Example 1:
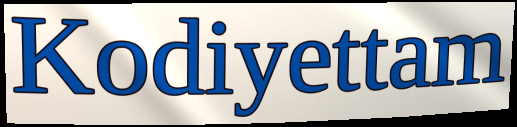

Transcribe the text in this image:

Kodiyettam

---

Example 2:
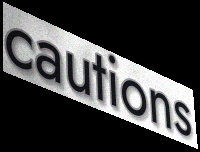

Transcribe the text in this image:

cautions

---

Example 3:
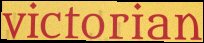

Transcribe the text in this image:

victorian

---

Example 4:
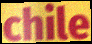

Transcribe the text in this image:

chile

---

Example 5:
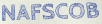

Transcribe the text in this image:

NAFSCOB